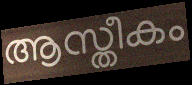
ആസ്തീകം